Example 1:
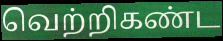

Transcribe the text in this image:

வெற்றிகண்ட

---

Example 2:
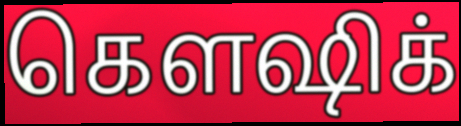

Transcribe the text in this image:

கௌஷிக்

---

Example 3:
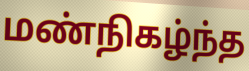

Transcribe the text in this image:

மண்நிகழ்ந்த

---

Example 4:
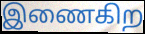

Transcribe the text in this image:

இணைகிற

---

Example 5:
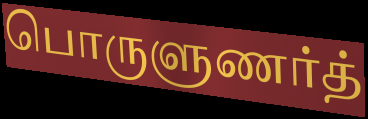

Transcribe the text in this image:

பொருளுணர்த்